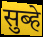
सुब्हे